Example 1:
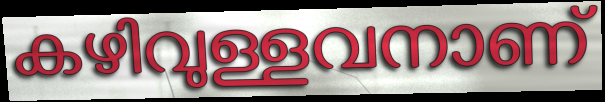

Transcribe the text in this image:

കഴിവുള്ളവനാണ്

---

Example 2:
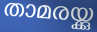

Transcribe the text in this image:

താമരയ്ക്കു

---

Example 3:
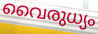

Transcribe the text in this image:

വൈരുധ്യം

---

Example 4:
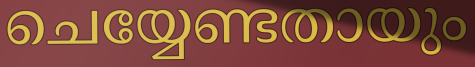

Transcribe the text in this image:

ചെയ്യേണ്ടതായും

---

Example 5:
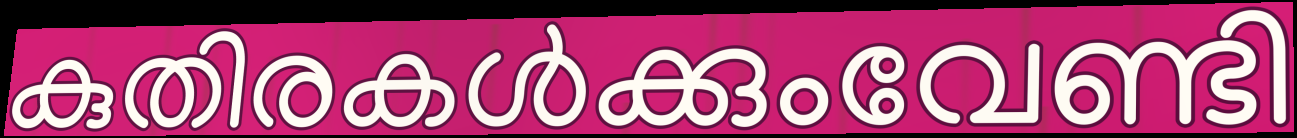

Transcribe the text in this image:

കുതിരകൾക്കുംവേണ്ടി